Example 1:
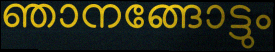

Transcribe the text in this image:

ഞാനങ്ങോട്ടും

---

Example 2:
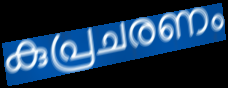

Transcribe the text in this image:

കുപ്രചരണം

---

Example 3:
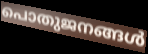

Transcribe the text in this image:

പൊതുജനങ്ങൾ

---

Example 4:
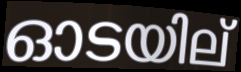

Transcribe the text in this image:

ഓടയില്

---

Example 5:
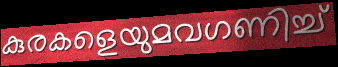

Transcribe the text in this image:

കുരകളെയുമവഗണിച്ച്